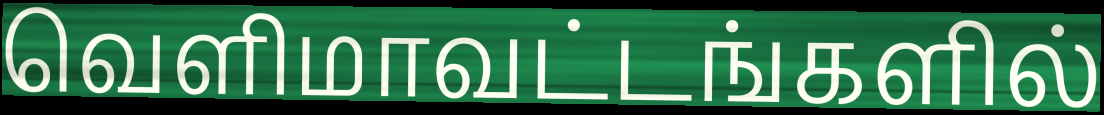
வெளிமாவட்டங்களில்